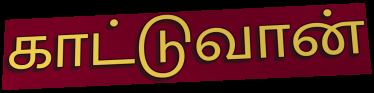
காட்டுவான்